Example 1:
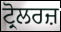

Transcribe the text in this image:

ਟ੍ਰੋਲਰਜ਼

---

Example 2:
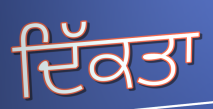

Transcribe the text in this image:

ਦਿੱਕਤਾ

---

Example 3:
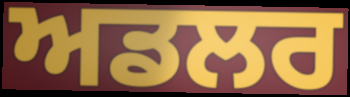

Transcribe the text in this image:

ਅਡਲਰ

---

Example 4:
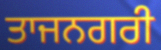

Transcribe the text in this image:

ਤਾਜਨਗਰੀ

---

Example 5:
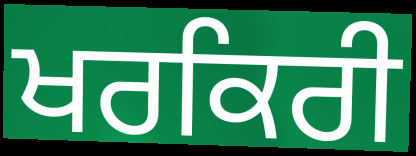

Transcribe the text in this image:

ਖਰਕਿਰੀ